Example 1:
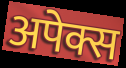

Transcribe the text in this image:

अपेक्स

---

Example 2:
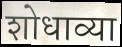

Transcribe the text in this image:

शोधाव्या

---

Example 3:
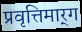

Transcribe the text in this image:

प्रवृत्तिमार्ग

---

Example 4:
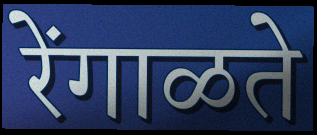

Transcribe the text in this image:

रेंगाळते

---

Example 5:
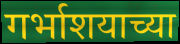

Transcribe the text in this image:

गर्भाशयाच्या